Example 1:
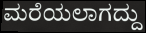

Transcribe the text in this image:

ಮರೆಯಲಾಗದ್ದು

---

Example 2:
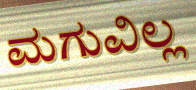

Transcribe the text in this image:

ಮಗುವಿಲ್ಲ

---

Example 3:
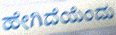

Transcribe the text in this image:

ಹೇಗಿದೆಯೆಂದು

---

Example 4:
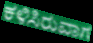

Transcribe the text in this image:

ಕಳಿಸಿರುವಾಗ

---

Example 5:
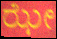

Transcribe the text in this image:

ಝೇ